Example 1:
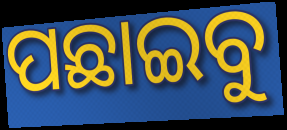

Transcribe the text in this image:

ପଛାଇବୁ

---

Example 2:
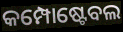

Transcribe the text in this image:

କମ୍ପୋଷ୍ଟେବଲ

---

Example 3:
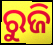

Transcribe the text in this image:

ରୁଜି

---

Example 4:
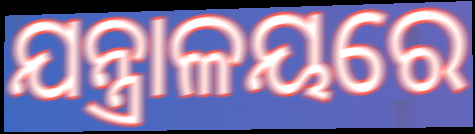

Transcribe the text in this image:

ଯନ୍ତ୍ରାଳୟରେ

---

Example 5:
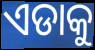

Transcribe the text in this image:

ଏଡାକୁ